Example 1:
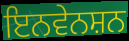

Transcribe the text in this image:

ਇਨਵੇਨਸ਼ਨ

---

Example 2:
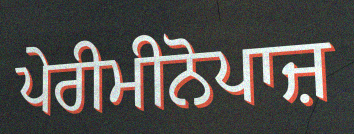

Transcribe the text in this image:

ਪੇਰੀਮੀਨੋਪਾਜ਼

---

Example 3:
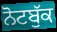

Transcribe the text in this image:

ਨੋਟਬੁੱਕ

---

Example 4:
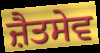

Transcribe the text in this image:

ਜ਼ੈਤਸੇਵ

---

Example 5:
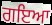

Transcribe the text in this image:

ਗਇਆ